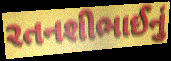
રતનશીભાઈનું